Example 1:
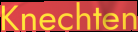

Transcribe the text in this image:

Knechten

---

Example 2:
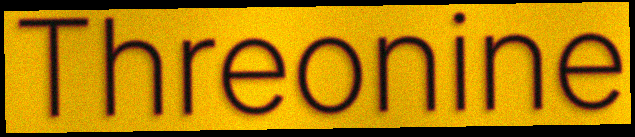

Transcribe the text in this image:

Threonine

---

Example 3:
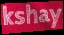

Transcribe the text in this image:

kshay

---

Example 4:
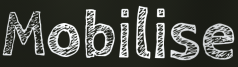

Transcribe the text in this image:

Mobilise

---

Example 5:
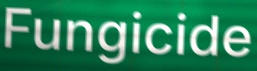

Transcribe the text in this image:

Fungicide